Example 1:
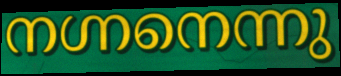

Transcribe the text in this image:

നഗ്നനെന്നു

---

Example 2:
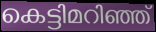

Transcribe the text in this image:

കെട്ടിമറിഞ്ഞ്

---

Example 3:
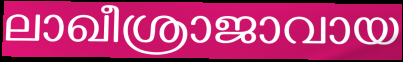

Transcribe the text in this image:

ലാഖീശ്രാജാവായ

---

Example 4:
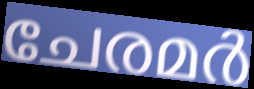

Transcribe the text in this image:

ചേരമർ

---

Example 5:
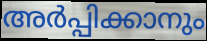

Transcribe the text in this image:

അർപ്പിക്കാനും